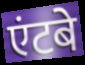
एंटबे